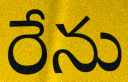
రేను